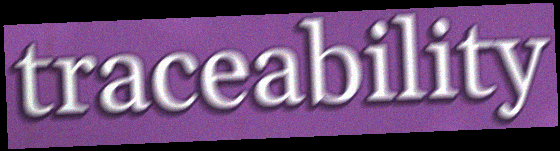
traceability